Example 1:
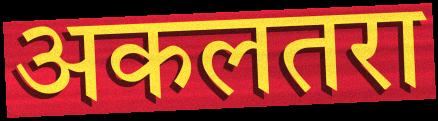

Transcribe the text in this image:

अकलतरा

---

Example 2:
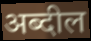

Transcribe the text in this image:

अब्दील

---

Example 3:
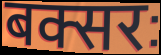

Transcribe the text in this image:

बक्सरः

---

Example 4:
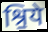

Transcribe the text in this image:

श्रि॒ये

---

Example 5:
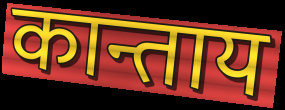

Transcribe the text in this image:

कान्ताय